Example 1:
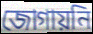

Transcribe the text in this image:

জোগায়নি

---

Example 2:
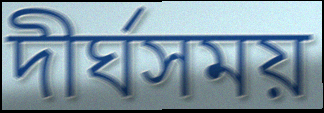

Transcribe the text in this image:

দীর্ঘসময়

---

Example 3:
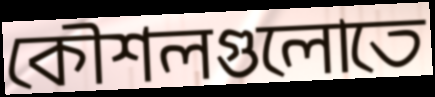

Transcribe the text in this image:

কৌশলগুলোতে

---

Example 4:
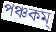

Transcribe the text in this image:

পঞ্চকম্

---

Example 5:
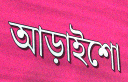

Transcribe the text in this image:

আড়াইশো